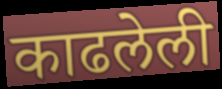
काढलेली